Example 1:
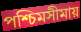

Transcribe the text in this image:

পশ্চিমসীমায়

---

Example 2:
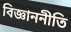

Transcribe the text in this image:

বিজ্ঞাননীতি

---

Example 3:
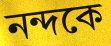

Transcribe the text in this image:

নন্দকে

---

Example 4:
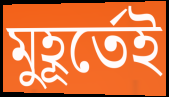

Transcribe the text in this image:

মুহূর্তেই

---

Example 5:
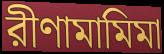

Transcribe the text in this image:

রীণামামিমা